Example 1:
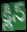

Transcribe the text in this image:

క్లీన్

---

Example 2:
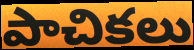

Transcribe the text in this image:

పాచికలు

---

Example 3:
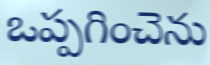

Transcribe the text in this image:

ఒప్పగించెను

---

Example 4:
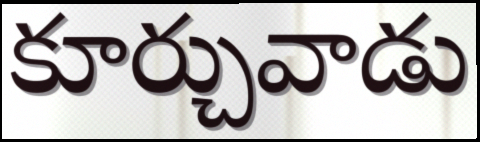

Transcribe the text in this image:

కూర్చువాడు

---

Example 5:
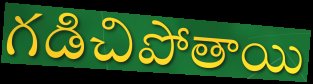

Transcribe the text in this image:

గడిచిపోతాయి